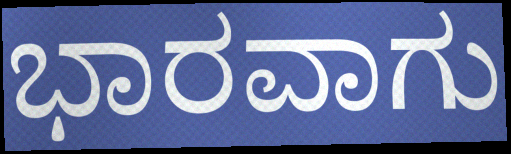
ಭಾರವಾಗು